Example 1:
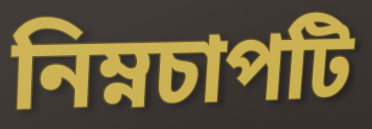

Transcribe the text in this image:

নিম্নচাপটি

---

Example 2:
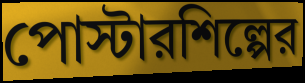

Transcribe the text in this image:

পোস্টারশিল্পের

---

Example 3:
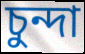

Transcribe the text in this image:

চুন্দা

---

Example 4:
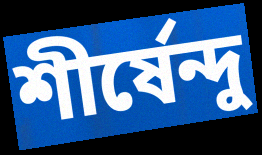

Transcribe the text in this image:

শীর্ষেন্দু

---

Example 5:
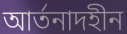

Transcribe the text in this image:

আর্তনাদহীন